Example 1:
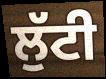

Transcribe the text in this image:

ਲੁੱਟੀ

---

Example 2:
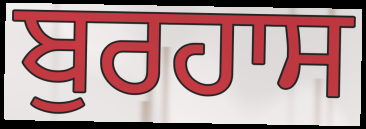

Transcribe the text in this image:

ਬੁਰਹਾਸ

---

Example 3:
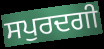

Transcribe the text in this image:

ਸਪੁਰਦਗੀ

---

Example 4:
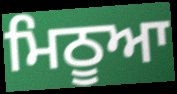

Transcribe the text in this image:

ਮਿਠੂਆ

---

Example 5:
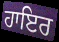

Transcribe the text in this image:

ਹਾਇਰ